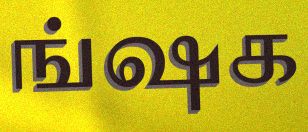
ங்ஷக